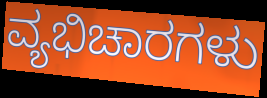
ವ್ಯಭಿಚಾರಗಳು